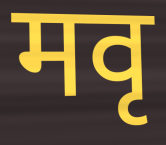
मवृ